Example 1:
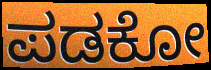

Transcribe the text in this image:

ಪಡಕೋ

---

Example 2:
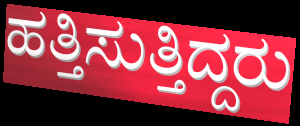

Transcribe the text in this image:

ಹತ್ತಿಸುತ್ತಿದ್ದರು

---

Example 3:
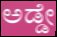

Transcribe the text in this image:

ಅಡ್ಡೇ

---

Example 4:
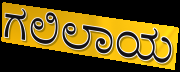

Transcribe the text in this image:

ಗಲಿಲಾಯ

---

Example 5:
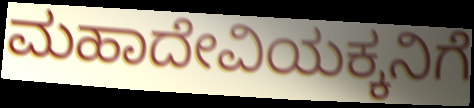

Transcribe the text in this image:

ಮಹಾದೇವಿಯಕ್ಕನಿಗೆ